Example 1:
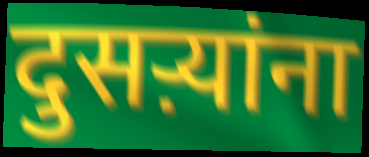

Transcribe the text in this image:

दुसऱ्‍यांना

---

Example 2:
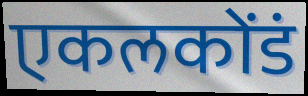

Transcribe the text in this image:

एकलकोंडं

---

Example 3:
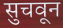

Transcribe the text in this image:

सुचवून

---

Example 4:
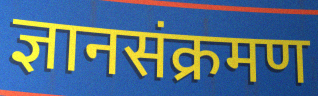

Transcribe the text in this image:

ज्ञानसंक्रमण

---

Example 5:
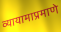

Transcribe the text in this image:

व्यायामाप्रमाणे